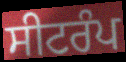
ਸੀਟਰੰਪ